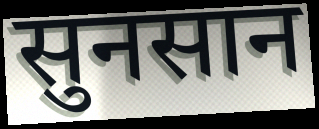
सुनसान